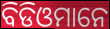
ବିଡିଓମାନେ